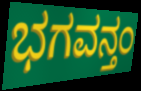
ಭಗವನ್ತಂ